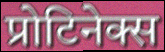
प्रोटिनेक्स